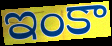
ఇంకా